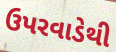
ઉપરવાડેથી